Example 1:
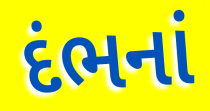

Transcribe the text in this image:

દંભનાં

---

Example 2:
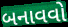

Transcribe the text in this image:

બનાવવો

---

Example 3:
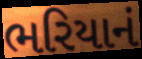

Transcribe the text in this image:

ભરિયાનં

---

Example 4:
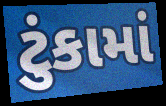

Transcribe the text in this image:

ટુંકામાં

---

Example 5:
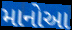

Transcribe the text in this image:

માનોઆ